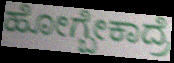
ಹೋಗ್ಬೇಕಾದ್ರೆ